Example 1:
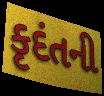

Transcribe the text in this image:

કૃદંતની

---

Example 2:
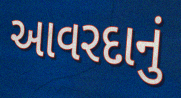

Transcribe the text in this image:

આવરદાનું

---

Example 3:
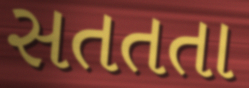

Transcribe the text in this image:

સતતતા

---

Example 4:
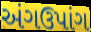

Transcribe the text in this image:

અંગઉપાંગ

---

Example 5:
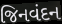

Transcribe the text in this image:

જિનવંદન